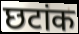
छटांक